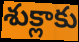
శుక్లాకు